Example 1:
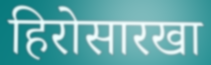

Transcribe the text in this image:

हिरोसारखा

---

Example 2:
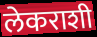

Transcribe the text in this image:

लेकराशी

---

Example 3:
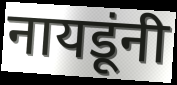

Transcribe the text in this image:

नायडूंनी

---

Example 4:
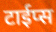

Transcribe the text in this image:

टाईप्स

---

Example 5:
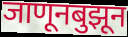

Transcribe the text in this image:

जाणूनबुझून